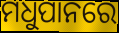
ମଧୁପାନରେ